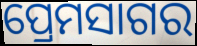
ପ୍ରେମସାଗର